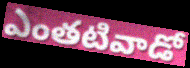
ఎంతటివాడో